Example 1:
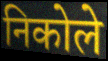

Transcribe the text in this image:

निकोले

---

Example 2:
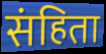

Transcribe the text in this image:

संहिता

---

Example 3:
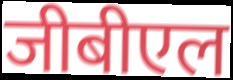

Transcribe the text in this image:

जीबीएल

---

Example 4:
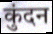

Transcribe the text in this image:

कुंदन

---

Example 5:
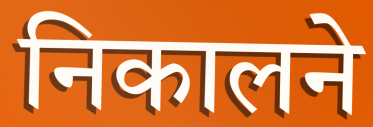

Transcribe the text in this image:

निकालने